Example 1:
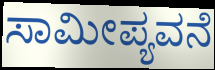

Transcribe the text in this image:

ಸಾಮೀಪ್ಯವನೆ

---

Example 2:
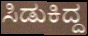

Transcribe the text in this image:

ಸಿಡುಕಿದ್ದ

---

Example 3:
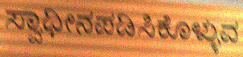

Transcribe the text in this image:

ಸ್ವಾಧೀನಪಡಿಸಿಕೊಳ್ಳುವ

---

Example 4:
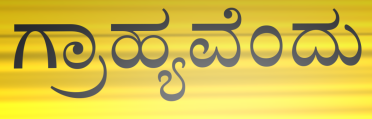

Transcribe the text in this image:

ಗ್ರಾಹ್ಯವೆಂದು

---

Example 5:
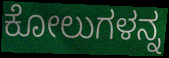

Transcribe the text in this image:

ಕೋಲುಗಳನ್ನ